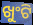
ଖୁଂଟି